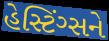
હેસ્ટિંગ્સને